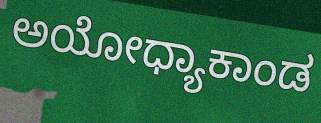
ಅಯೋಧ್ಯಾಕಾಂಡ